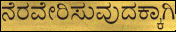
ನೆರವೇರಿಸುವುದಕ್ಕಾಗಿ